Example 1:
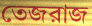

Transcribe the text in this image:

তেজরাজ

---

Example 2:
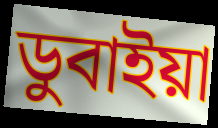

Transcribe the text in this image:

ডুবাইয়া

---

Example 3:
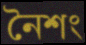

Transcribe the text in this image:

নৈশং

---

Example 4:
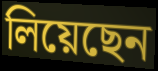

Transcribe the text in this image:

লিয়েছেন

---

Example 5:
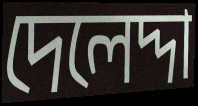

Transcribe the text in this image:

দেলেদ্দা